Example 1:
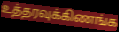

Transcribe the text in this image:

உத்தரவுக்கிணங்க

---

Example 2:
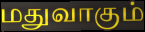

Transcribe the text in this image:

மதுவாகும்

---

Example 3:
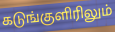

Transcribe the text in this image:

கடுங்குளிரிலும்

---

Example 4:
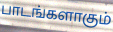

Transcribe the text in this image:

பாடங்களாகும்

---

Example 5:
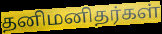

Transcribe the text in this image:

தனிமனிதர்கள்